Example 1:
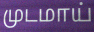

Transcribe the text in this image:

முடமாய்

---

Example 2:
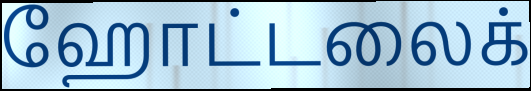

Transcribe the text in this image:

ஹோட்டலைக்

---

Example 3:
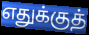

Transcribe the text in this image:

எதுக்குத்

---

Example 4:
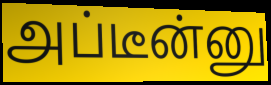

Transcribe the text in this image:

அப்டீன்னு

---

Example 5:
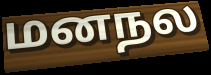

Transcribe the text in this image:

மனநல